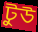
টুউ